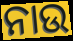
ନାଉ